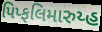
પિપ્ફલિમારુય્હ